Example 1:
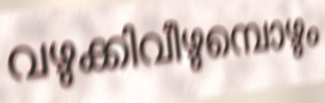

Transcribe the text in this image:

വഴുക്കിവീഴുമ്പൊഴും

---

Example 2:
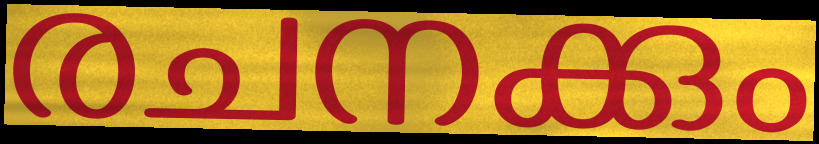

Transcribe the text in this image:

രചനക്കും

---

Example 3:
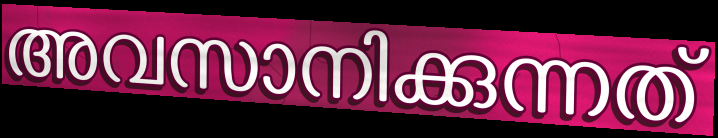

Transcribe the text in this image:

അവസാനിക്കുന്നത്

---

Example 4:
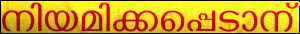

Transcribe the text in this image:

നിയമിക്കപ്പെടാന്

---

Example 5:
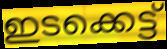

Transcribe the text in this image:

ഇടക്കെട്ട്